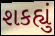
શકહ્યું